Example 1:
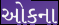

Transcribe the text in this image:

ઓકના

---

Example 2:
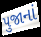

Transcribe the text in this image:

પુજાનાં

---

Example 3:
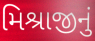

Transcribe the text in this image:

મિશ્રાજીનું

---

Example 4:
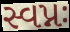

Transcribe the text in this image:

સ્વપ્નઃ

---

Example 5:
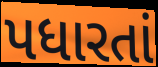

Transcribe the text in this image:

પધારતાં